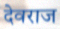
देवराज